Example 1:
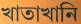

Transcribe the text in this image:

খাতাখানি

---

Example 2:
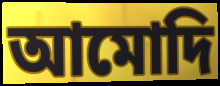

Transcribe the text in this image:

আমোদি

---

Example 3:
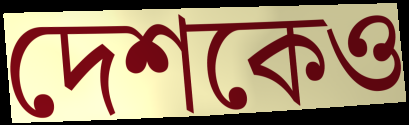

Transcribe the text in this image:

দেশকেও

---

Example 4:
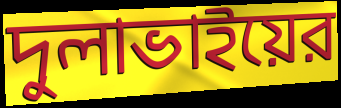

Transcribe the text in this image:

দুলাভাইয়ের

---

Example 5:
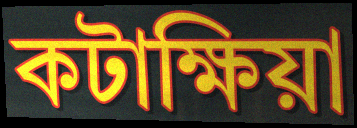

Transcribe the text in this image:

কটাক্ষিয়া